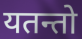
यतन्तो